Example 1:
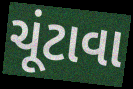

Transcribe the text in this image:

ચૂંટાવા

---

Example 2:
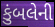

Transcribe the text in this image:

કુંબલેની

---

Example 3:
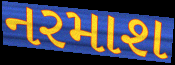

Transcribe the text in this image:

નરમાશ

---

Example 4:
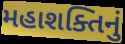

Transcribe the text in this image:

મહાશક્તિનું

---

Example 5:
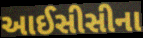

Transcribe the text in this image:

આઈસીસીના